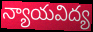
న్యాయవిద్య